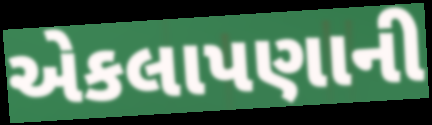
એકલાપણાની